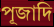
পূজাদি